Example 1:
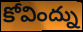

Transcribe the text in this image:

కోవింద్ను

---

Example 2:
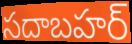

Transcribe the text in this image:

సదాబహర్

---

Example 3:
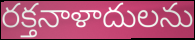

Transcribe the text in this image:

రక్తనాళాదులను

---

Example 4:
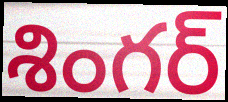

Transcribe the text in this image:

శింగర్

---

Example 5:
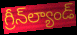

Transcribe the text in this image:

గ్రీన్‌ల్యాండ్